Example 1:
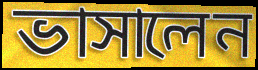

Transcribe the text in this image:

ভাসালেন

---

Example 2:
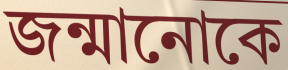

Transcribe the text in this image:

জন্মানোকে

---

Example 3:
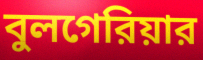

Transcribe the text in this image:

বুলগেরিয়ার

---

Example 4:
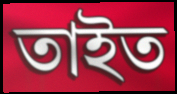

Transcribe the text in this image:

তাইত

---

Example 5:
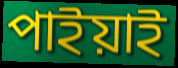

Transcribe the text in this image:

পাইয়াই